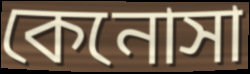
কেনোসা